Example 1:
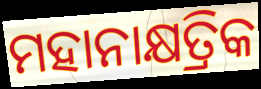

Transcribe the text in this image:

ମହାନାକ୍ଷତ୍ରିକ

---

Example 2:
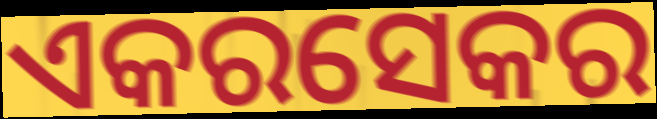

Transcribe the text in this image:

ଏକରସେକର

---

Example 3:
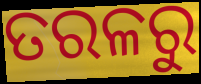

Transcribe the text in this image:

ତରଳରୁ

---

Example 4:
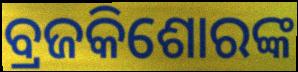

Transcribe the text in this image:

ବ୍ରଜକିଶୋରଙ୍କ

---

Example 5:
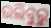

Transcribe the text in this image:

ଉଲିବୁରୁ